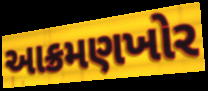
આક્રમણખોર